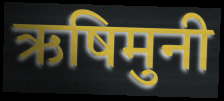
ऋषिमुनी